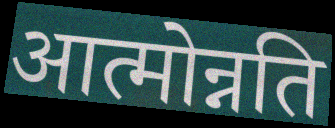
आत्मोन्नति